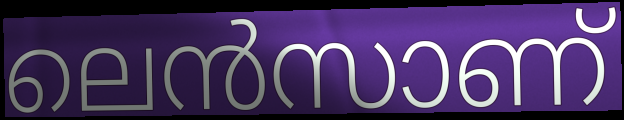
ലെൻസാണ്